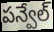
పన్వేల్